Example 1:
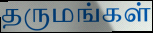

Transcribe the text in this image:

தருமங்கள்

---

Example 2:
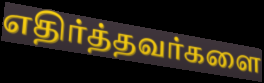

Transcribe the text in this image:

எதிர்த்தவர்களை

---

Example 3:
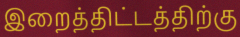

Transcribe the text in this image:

இறைத்திட்டத்திற்கு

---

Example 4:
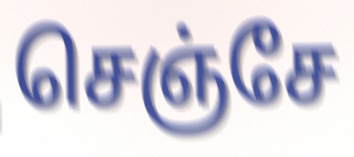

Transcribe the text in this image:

செஞ்சே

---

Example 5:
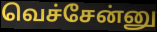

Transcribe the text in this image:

வெச்சேன்னு